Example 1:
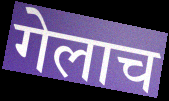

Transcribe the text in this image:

गेलाच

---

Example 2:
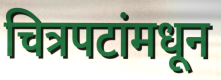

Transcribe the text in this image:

चित्रपटांमधून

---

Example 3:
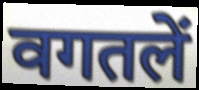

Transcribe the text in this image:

वगतलें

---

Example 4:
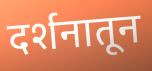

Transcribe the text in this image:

दर्शनातून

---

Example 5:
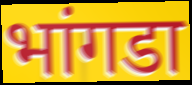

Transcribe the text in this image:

भांगडा